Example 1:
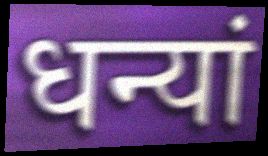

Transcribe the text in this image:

धन्यां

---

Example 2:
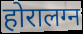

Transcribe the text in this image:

होरालग्न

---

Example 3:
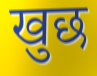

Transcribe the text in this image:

खुछ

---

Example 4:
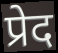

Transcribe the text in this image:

प्रेद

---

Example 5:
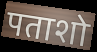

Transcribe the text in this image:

पताशो